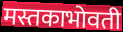
मस्तकाभोवती